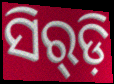
ସିର୍‌ଡ଼ି